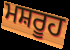
ਮਸ਼ਰੂਹ